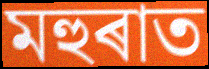
মহুৰাত